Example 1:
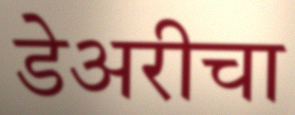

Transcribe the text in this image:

डेअरीचा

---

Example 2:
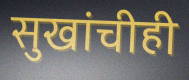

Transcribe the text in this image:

सुखांचीही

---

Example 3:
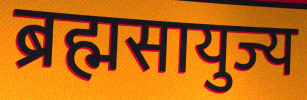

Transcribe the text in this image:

ब्रह्मसायुज्य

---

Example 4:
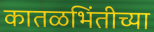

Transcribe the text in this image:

कातळभिंतीच्या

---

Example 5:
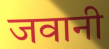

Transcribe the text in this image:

जवानी